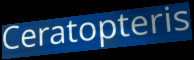
Ceratopteris